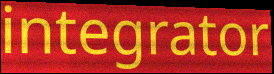
integrator